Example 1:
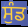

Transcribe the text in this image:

ਸੁੰਡ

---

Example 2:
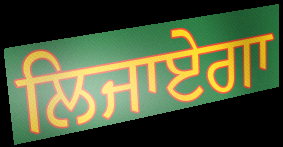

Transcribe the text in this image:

ਲਿਜਾਏਗਾ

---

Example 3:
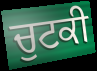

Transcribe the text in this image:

ਚੁਟਕੀ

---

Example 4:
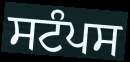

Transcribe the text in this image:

ਸਟੰਪਸ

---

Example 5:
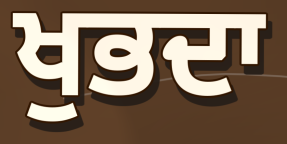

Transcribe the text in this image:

ਖੁਭਦਾ